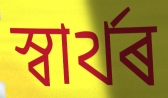
স্বাৰ্থৰ